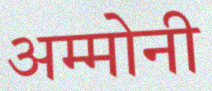
अम्मोनी